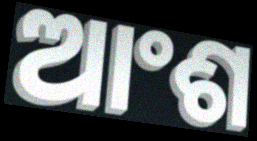
ଆଂଶ